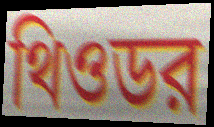
থিওডর